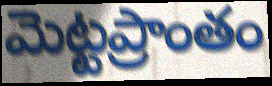
మెట్టప్రాంతం